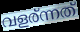
വളര്ന്നത്